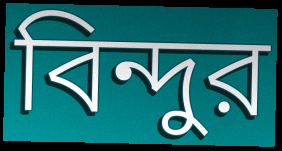
বিন্দুর